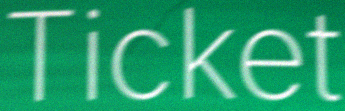
Ticket